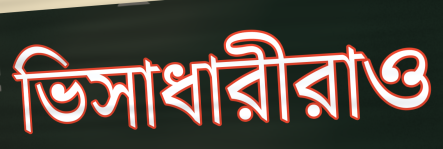
ভিসাধারীরাও